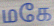
மகே